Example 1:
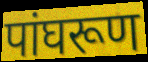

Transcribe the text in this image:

पांघरूण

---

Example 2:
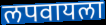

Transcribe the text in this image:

लपवायला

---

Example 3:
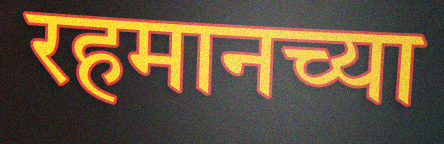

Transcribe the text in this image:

रहमानच्या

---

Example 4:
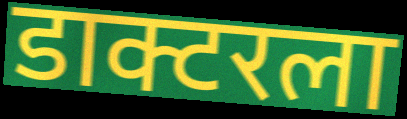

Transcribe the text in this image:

डाक्टरला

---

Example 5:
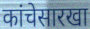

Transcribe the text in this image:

कांचेसारखा